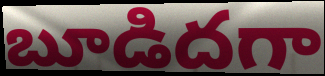
బూడిదగా